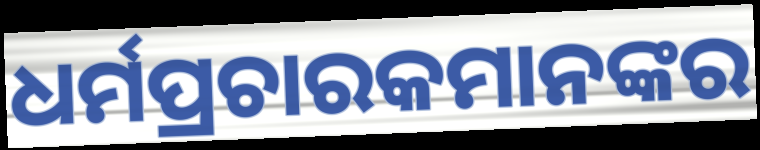
ଧର୍ମପ୍ରଚାରକମାନଙ୍କର